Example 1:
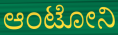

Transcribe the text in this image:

ಆಂಟೋನಿ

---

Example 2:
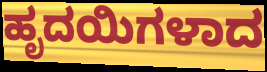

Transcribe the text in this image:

ಹೃದಯಿಗಳಾದ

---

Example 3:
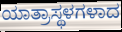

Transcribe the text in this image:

ಯಾತ್ರಾಸ್ಥಳಗಳಾದ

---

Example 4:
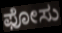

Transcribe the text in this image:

ಫೋಸು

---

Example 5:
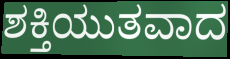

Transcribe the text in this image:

ಶಕ್ತಿಯುತವಾದ